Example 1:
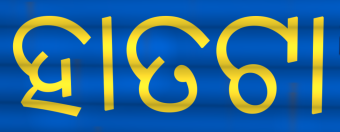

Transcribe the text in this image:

ହାତଟା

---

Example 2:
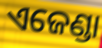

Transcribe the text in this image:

ଏଜେଣ୍ଡା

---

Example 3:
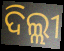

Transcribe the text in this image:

ଦିଲ୍ଲୀ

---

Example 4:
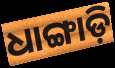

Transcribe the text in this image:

ଧାଙ୍ଗାଡ଼ି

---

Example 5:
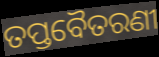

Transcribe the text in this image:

ତପ୍ତବୈତରଣୀ